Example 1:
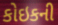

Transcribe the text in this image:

કોઇકની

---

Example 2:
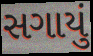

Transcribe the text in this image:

સગાયું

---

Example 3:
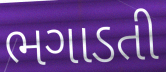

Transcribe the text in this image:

ભગાડતી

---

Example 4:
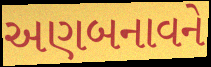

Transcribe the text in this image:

અણબનાવને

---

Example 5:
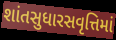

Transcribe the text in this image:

શાંતસુધારસવૃત્તિમાં